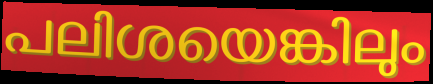
പലിശയെങ്കിലും